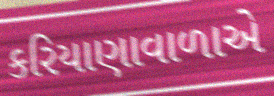
કરિયાણાવાળાએ